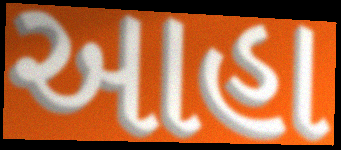
આહા